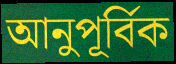
আনুপূর্বিক